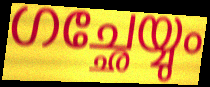
ഗച്ഛേയ്യും